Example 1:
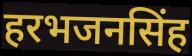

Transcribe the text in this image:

हरभजनसिंह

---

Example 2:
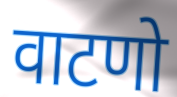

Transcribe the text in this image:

वाटणो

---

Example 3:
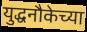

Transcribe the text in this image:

युद्धनौकेच्या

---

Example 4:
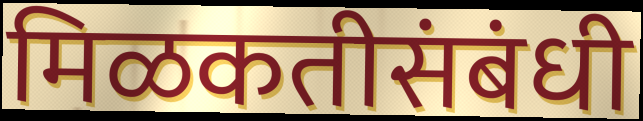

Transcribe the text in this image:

मिळकतीसंबंधी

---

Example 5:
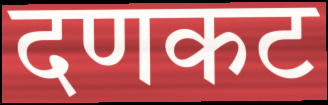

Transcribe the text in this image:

दणकट